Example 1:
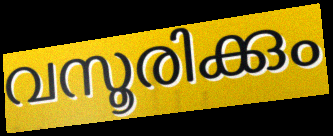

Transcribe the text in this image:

വസൂരിക്കും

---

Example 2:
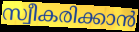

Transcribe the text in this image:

സ്വീകരിക്കാൻ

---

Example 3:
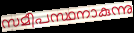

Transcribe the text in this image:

സമീപസ്ഥനാകുന്നു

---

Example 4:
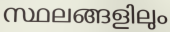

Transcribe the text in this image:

സ്ഥലങ്ങളിലും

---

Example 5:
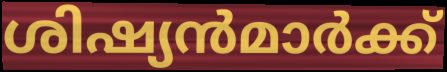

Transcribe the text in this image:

ശിഷ്യൻമാർക്ക്